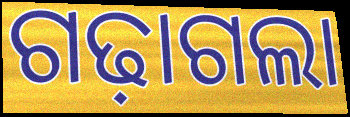
ଗଢ଼ାଗଲା